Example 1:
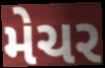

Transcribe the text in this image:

મેચર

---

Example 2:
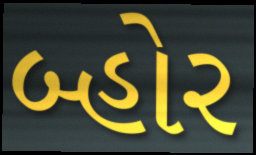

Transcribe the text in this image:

બ્હોર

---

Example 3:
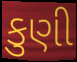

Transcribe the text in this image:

કુણી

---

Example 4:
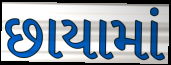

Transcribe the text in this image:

છાયામાં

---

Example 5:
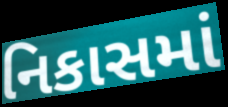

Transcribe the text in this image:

નિકાસમાં